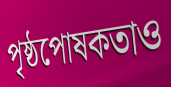
পৃষ্ঠপোষকতাও